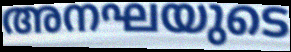
അനഘയുടെ